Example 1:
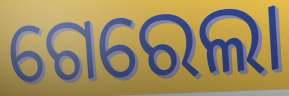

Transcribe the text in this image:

ଗେରେଲା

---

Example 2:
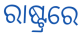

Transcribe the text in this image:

ରାଷ୍ଟ୍ରରେ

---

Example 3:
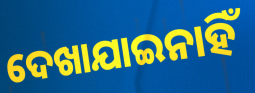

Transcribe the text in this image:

ଦେଖାଯାଇନାହିଁ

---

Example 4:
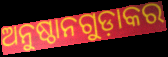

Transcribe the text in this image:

ଅନୁଷ୍ଠାନଗୁଡ଼ାକର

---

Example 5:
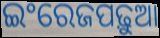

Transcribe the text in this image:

ଇଂରେଜପଢ଼ୁଆ